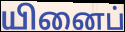
யினைப்